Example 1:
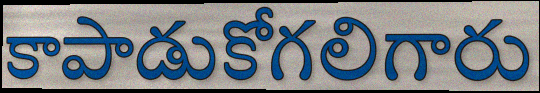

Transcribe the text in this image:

కాపాడుకోగలిగారు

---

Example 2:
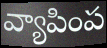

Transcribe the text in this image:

వ్యాపింప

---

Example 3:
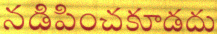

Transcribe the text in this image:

నడిపించకూడదు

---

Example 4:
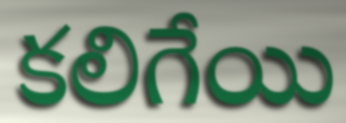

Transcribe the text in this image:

కలిగేయి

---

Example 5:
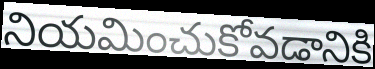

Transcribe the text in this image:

నియమించుకోవడానికి